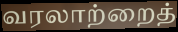
வரலாற்றைத்